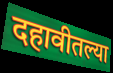
दहावीतल्या